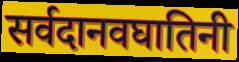
सर्वदानवघातिनी